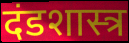
दंडशास्त्र